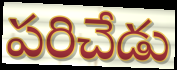
పరిచేడు